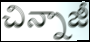
చిన్నాజీ